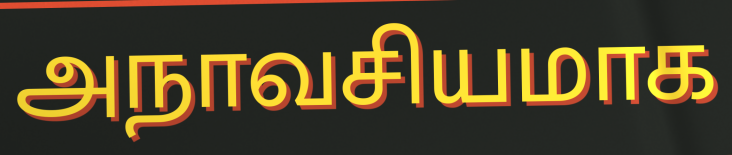
அநாவசியமாக